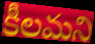
కీలమని